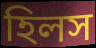
হিলস